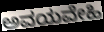
ಅವಯವೇಹಿ